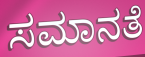
ಸಮಾನತೆ